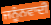
ਜਨੂੰਨਵਾਦੀ